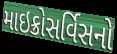
માઇક્રોસર્વિસનો